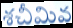
శచీమివ